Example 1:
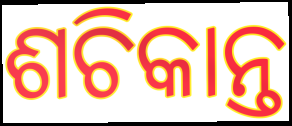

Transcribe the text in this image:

ଶଚିକାନ୍ତ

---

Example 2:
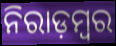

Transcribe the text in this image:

ନିରାଡ଼ମ୍ବର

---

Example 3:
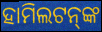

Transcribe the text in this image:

ହାମିଲଟନ୍‍ଙ୍କ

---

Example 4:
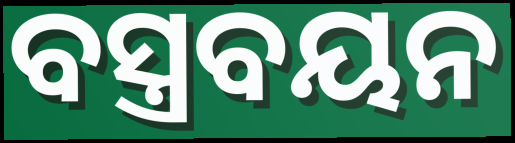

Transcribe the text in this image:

ବସ୍ତ୍ରବୟନ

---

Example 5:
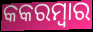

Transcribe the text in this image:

କକରମ୍ବାର